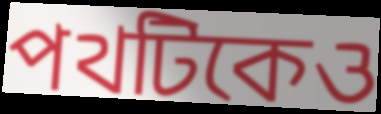
পথটিকেও